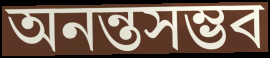
অনন্তসম্ভব